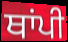
ਥਾਂਪੀ